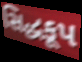
સિદ્ધકૂપ